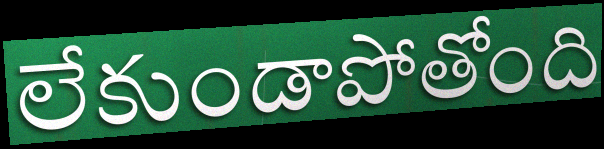
లేకుండాపోతోంది